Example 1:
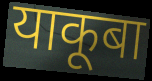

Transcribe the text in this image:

याकूबा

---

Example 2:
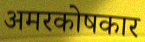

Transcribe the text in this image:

अमरकोषकार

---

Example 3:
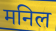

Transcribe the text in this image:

मनिल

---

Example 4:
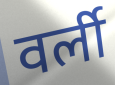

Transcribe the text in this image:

वर्ली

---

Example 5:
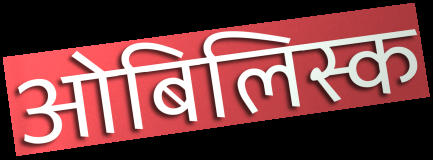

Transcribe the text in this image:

ओबिलिस्क